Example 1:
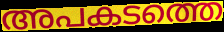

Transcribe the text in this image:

അപകടത്തെ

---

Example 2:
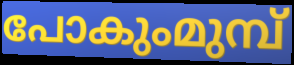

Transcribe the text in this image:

പോകുംമുമ്പ്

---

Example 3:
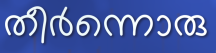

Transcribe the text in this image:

തീർന്നൊരു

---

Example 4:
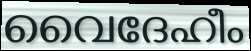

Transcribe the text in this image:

വൈദേഹീം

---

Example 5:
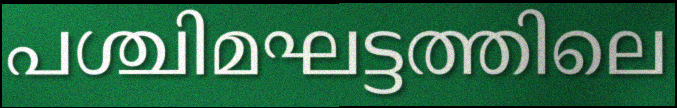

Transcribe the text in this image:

പശ്ചിമഘട്ടത്തിലെ